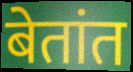
बेतांत